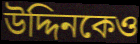
উদ্দিনকেও